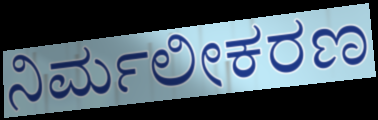
ನಿರ್ಮಲೀಕರಣ